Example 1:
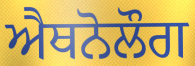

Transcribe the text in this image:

ਐਥਨੋਲੌਗ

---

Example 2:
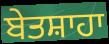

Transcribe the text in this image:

ਬੇਤਸ਼ਾਹਾ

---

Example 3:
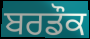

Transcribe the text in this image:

ਬਰਡੌਕ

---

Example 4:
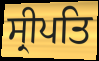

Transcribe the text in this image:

ਸ੍ਰੀਪਤਿ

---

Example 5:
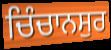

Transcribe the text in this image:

ਚਿੰਚਾਨਸੁਰ